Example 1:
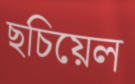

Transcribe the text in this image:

ছচিয়েল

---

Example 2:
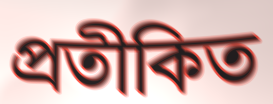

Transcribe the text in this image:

প্ৰতীকিত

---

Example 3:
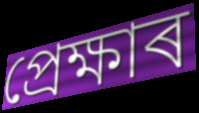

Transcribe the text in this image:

প্ৰেক্ষাৰ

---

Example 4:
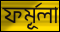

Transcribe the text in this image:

ফৰ্মূলা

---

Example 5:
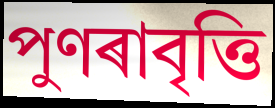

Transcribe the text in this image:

পুণৰাবৃত্তি